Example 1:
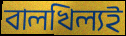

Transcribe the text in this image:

বালখিল্যই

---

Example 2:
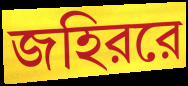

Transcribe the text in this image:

জহিররে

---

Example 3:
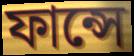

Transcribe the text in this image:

ফান্সে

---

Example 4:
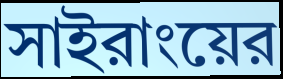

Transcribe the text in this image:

সাইরাংয়ের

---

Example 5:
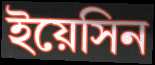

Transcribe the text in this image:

ইয়েসিন